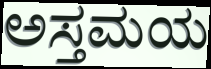
ಅಸ್ತಮಯ